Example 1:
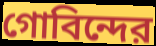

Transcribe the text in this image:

গোবিন্দের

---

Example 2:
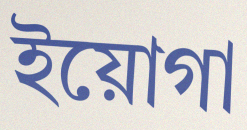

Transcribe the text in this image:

ইয়োগা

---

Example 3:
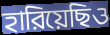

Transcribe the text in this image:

হারিয়েছিও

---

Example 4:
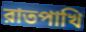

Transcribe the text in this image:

রাতপাখি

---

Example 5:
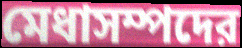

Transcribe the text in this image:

মেধাসম্পদের